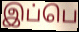
இப்பெ